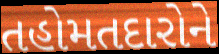
તહોમતદારોને